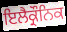
ਇਲੈਕ੍ਰੌਨਿਕ